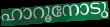
ഹാറൂനോടു